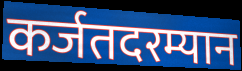
कर्जतदरम्यान